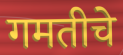
गमतीचे